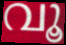
വൂ